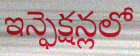
ఇన్ఫెక్షన్లలో